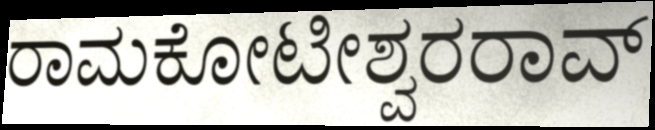
ರಾಮಕೋಟೀಶ್ವರರಾವ್